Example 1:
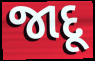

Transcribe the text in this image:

જાદૂ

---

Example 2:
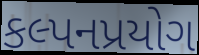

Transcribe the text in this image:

કલ્પનપ્રયોગ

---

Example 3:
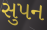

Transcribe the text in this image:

સુપન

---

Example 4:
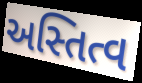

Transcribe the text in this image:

અસ્તિત્વ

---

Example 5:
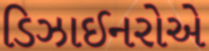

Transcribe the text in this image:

ડિઝાઈનરોએ